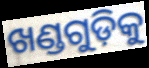
ଖଣ୍ଡଗୁଡ଼ିକୁ